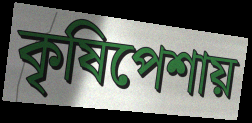
কৃষিপেশায়